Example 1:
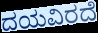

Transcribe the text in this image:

ದಯವಿರದೆ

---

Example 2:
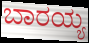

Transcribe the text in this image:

ಬಾರಯ್ಯ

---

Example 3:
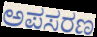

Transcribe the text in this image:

ಅಪಸರಣ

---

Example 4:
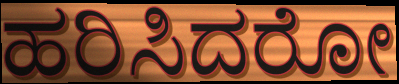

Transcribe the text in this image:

ಹರಿಸಿದರೋ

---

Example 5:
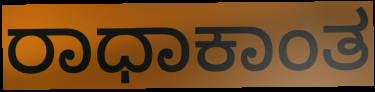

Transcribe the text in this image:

ರಾಧಾಕಾಂತ